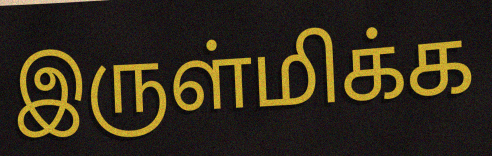
இருள்மிக்க